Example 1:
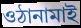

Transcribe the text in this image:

ওঠানামাই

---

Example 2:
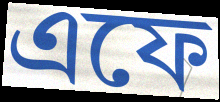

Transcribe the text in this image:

এফে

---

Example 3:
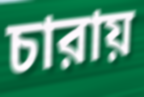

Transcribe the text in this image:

চারায়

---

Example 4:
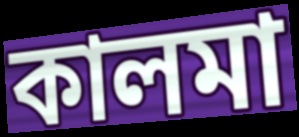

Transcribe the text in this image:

কালমা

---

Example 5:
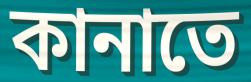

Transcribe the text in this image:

কানাতে